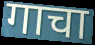
गाचा